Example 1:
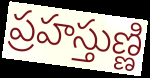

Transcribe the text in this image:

ప్రహస్తుణ్ణి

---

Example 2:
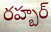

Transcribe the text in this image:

రహ్బర్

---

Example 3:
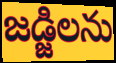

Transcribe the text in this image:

జడ్జిలను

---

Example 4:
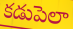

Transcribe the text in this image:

కడుపెలా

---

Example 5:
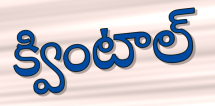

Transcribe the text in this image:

క్వింటాల్